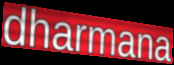
dharmana